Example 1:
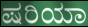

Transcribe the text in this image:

ಷರಿಯಾ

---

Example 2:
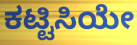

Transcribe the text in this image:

ಕಟ್ಟಿಸಿಯೇ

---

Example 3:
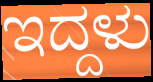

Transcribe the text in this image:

ಇದ್ದಳು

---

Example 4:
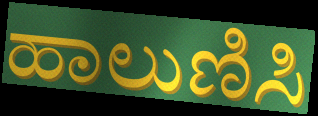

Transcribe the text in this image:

ಹಾಲುಣಿಸಿ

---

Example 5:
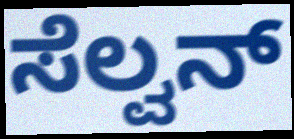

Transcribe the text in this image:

ಸೆಲ್ವನ್